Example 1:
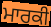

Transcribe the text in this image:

ਮਾਰਕੀ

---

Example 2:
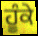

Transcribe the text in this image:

ਹੂੰਕੇ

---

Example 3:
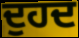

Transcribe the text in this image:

ਦੁਹਦ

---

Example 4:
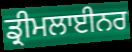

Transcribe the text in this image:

ਡ੍ਰੀਮਲਾਈਨਰ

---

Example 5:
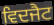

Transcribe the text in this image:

ਵਿਦਜੈਟ